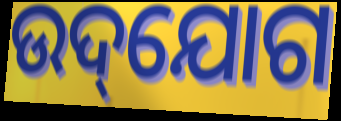
ଉଦ୍‌ଯୋଗ